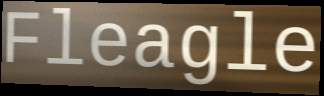
Fleagle